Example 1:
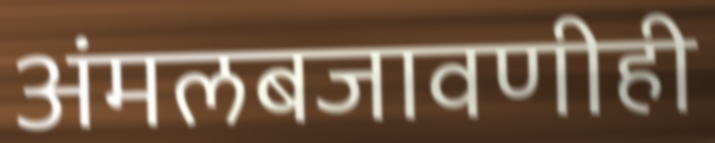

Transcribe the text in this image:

अंमलबजावणीही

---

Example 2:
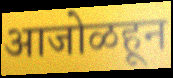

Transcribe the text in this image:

आजोळहून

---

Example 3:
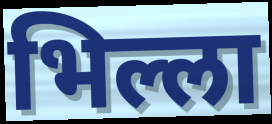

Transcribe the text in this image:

भिल्ला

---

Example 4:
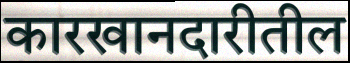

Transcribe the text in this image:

कारखानदारीतील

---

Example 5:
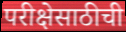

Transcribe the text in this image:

परीक्षेसाठीची